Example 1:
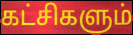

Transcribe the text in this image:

கட்சிகளும்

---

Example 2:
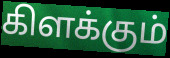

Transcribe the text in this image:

கிளக்கும்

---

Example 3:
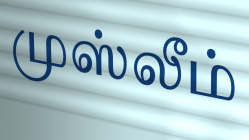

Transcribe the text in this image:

முஸ்லீம்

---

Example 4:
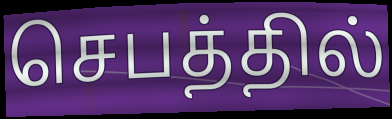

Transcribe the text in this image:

செபத்தில்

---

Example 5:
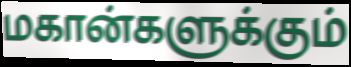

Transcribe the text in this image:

மகான்களுக்கும்